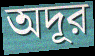
অদূর